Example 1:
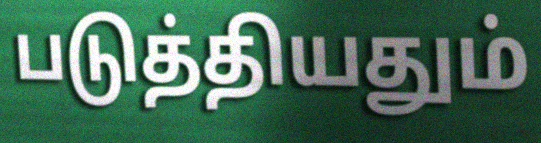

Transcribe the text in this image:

படுத்தியதும்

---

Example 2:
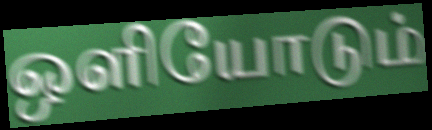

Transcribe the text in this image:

ஒளியோடும்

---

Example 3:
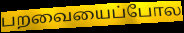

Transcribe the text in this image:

பறவையைப்போல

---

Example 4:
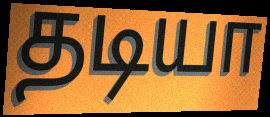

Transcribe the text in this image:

தடியா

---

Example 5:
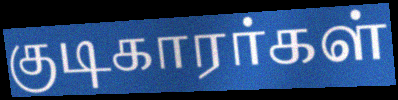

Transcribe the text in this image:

குடிகாரர்கள்